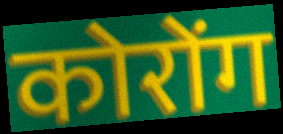
कोरोंग